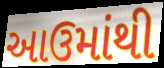
આઉમાંથી